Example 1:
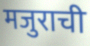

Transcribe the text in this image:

मजुराची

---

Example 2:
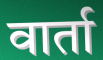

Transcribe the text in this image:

वार्ता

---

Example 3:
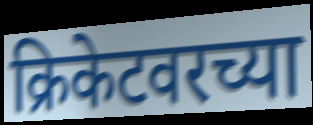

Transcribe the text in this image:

क्रिकेटवरच्या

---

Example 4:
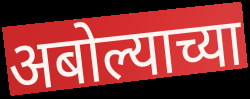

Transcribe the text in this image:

अबोल्याच्या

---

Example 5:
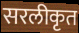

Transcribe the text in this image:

सरलीकृत